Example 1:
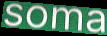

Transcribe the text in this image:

soma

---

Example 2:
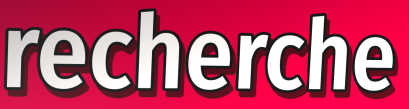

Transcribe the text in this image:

recherche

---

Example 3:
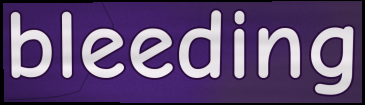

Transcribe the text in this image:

bleeding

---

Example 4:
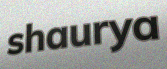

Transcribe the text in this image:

shaurya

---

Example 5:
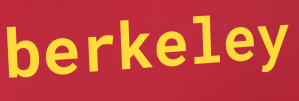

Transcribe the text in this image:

berkeley